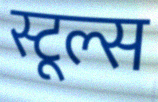
स्टूल्स